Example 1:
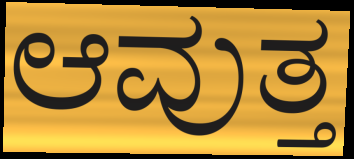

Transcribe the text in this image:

ಆವುತ್ತ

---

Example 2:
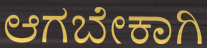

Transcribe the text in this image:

ಆಗಬೇಕಾಗಿ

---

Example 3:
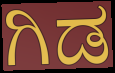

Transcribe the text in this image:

ಗಿಡ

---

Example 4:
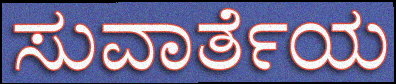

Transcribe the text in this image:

ಸುವಾರ್ತೆಯ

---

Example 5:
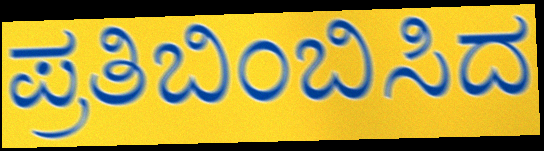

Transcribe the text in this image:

ಪ್ರತಿಬಿಂಬಿಸಿದ